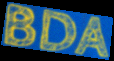
BDA